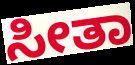
ಸೀತಾ